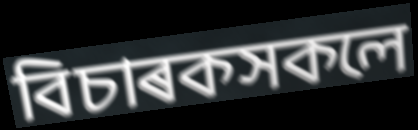
বিচাৰকসকলে